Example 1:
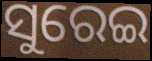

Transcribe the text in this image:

ସୁରେଇ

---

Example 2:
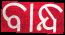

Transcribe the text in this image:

ବାନ୍ଧ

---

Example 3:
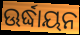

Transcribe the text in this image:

ଊର୍ଦ୍ଧାୟନ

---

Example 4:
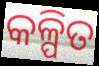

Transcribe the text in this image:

କଳ୍ପିତ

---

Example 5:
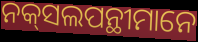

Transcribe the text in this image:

ନକ୍‌ସଲପନ୍ଥୀମାନେ